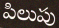
పిలుపు